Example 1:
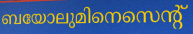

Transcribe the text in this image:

ബയോലുമിനെസെന്റ്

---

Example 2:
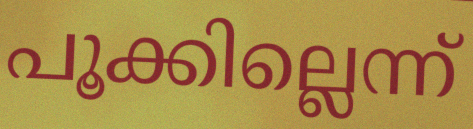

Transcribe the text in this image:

പൂക്കില്ലെന്ന്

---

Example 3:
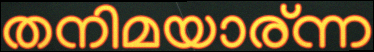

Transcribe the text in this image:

തനിമയാര്ന്ന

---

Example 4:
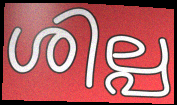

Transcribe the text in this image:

ശില്പ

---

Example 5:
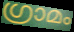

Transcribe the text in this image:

ഗ്രാമം